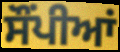
ਸੌਂਪੀਆਂ